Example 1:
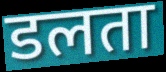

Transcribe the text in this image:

डलता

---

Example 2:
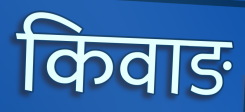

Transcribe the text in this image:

किवाङ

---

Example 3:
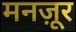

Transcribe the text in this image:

मनज़ूर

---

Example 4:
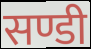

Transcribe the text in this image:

सण्डी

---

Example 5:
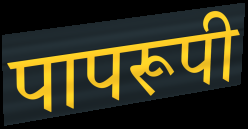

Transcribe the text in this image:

पापरूपी